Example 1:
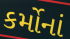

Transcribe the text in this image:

કર્મોનાં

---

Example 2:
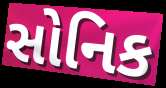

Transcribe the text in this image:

સોનિક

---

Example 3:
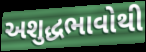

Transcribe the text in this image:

અશુદ્ધભાવોથી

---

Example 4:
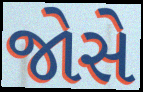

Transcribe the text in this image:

જોસે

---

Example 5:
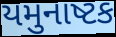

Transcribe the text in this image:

યમુનાષ્ટક